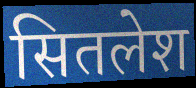
सितलेश